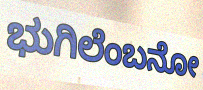
ಭುಗಿಲೆಂಬನೋ